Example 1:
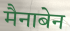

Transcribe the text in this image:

मैनाबेन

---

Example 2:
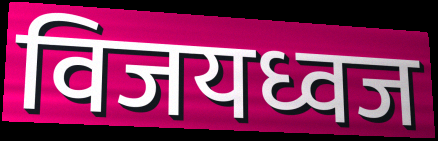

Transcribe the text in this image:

विजयध्वज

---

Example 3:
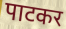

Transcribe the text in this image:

पाटकर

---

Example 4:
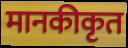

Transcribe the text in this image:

मानकीकृत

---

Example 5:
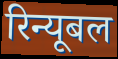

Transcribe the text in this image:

रिन्यूबल